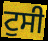
ਟੁਸੀ